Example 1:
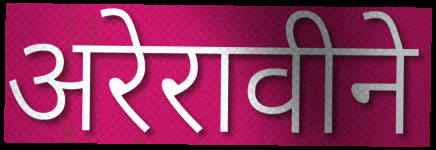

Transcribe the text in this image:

अरेरावीने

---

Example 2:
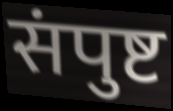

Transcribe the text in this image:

संपुष्ट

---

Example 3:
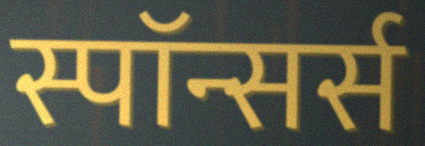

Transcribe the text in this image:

स्पॉन्सर्स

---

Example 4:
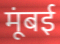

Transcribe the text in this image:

मूंबई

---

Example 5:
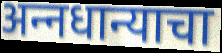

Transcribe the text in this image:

अन्नधान्याचा